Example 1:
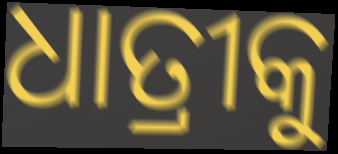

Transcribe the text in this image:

ଧାତ୍ରୀକୁ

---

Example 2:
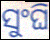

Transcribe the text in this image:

ସୁଂଘି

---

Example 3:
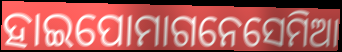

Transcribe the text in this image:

ହାଇପୋମାଗନେସେମିଆ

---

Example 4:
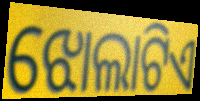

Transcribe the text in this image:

ଝୋଲାଟିଏ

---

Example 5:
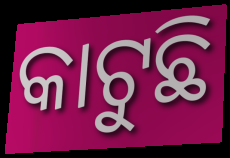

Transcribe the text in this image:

କାଟୁଛି